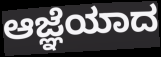
ಆಜ್ಞೆಯಾದ